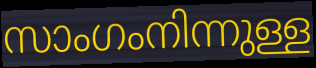
സാംഗംനിന്നുള്ള